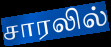
சாரலில்